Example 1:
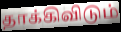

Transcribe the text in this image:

தாக்கிவிடும்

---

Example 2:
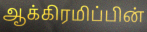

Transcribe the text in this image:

ஆக்கிரமிப்பின்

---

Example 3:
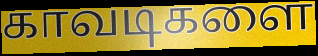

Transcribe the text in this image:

காவடிகளை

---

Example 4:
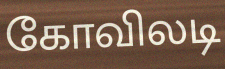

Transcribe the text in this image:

கோவிலடி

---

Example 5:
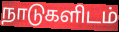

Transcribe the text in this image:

நாடுகளிடம்